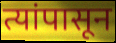
त्यांपासून